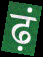
ढ़ं